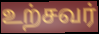
உற்சவர்